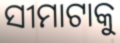
ସୀମାଟାକୁ